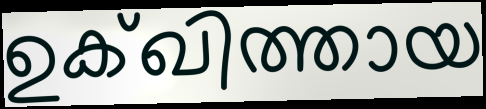
ഉക്ഖിത്തായ